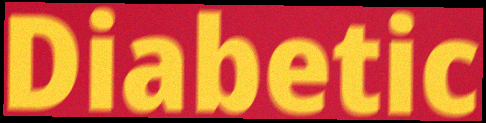
Diabetic